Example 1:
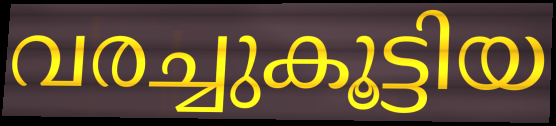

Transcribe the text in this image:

വരച്ചുകൂട്ടിയ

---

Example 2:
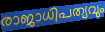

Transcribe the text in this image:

രാജാധിപത്യവും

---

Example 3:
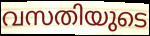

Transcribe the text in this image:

വസതിയുടെ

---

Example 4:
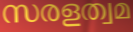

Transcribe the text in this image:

സരളത്വമ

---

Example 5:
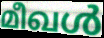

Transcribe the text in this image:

മീഖൾ